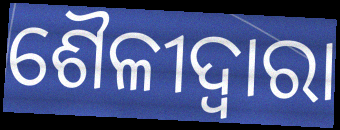
ଶୈଳୀଦ୍ୱାରା